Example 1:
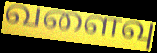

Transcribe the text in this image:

வளைவு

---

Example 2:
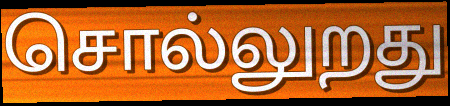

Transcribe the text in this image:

சொல்லுறது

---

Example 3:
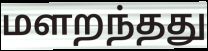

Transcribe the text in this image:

மளறந்தது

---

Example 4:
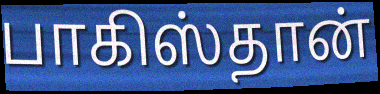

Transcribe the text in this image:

பாகிஸ்தான்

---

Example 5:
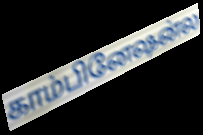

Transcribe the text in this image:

காம்பினேஷன்ல